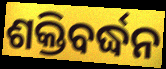
ଶକ୍ତିବର୍ଦ୍ଧନ